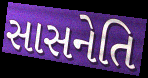
સાસનેતિ